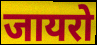
जायरो